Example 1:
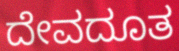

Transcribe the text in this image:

ದೇವದೂತ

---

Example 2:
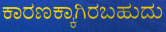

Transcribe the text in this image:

ಕಾರಣಕ್ಕಾಗಿರಬಹುದು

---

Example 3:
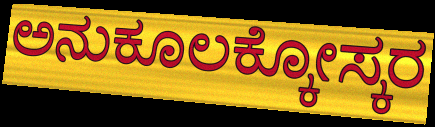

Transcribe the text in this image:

ಅನುಕೂಲಕ್ಕೋಸ್ಕರ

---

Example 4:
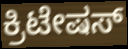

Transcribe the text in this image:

ಕ್ರಿಟೇಷಸ್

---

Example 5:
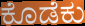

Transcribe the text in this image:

ಕೊಡೆಕು